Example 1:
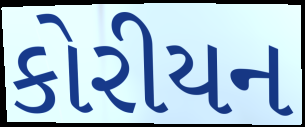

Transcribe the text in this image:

કોરીયન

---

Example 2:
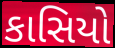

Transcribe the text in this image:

કાસિયો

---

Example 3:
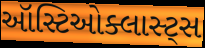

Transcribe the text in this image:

ઑસ્ટિઓક્લાસ્ટ્સ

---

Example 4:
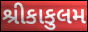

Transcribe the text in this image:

શ્રીકાકુલમ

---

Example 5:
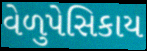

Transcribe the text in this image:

વેળુપેસિકાય